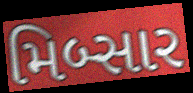
મિબ્સાર